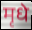
मृधे